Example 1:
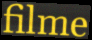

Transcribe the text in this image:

filme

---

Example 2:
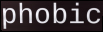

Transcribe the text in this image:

phobic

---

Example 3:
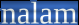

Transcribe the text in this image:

nalam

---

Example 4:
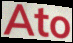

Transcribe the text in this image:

Ato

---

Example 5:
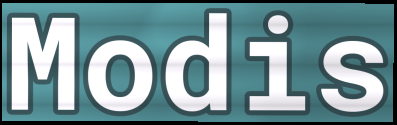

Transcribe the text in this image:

Modis